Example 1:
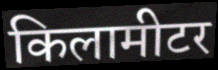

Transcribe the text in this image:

किलामीटर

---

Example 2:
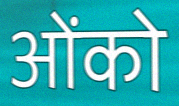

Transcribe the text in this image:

ओंको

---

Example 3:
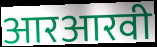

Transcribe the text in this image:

आरआरवी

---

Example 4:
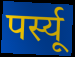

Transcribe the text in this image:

पर्स्यू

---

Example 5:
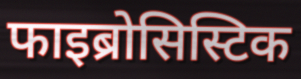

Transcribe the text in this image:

फाइब्रोसिस्टिक